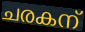
ചരകന്